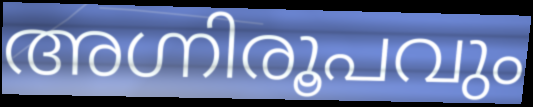
അഗ്നിരൂപവും